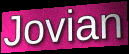
Jovian